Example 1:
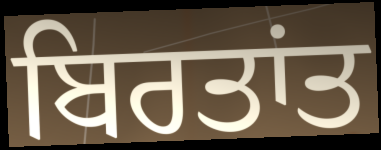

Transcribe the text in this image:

ਬਿਰਤਾਂਤ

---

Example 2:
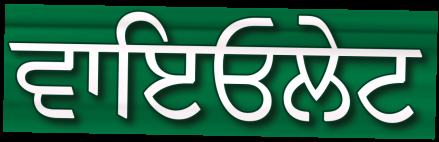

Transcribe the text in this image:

ਵਾਇਓਲੇਟ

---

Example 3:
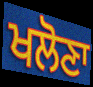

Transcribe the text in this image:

ਖਲੋਣਾ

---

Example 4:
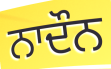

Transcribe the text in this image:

ਨਾਦੌਨ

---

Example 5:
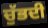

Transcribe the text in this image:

ਚੁੱਭਦੀ